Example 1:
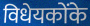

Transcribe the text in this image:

विधेयकोंके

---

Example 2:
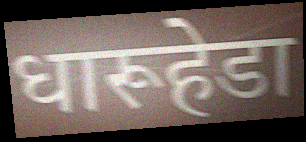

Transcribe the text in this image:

धारूहेडा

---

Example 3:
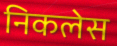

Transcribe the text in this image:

निकलेस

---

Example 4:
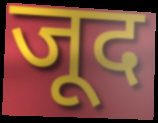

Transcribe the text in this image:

जूद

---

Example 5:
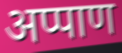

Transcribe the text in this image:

अप्पाण